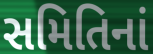
સમિતિનાં